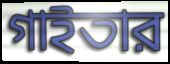
গাইতার